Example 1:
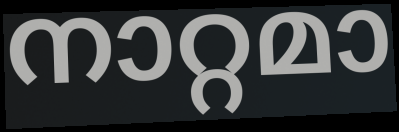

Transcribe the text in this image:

നാറ്റമാ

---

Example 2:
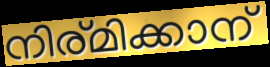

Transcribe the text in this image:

നിര്മിക്കാന്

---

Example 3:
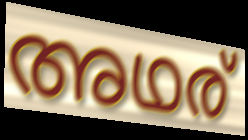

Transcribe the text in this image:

അഥര്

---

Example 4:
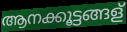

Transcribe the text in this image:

ആനക്കൂട്ടങ്ങള്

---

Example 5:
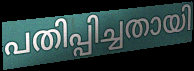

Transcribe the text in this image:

പതിപ്പിച്ചതായി